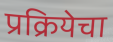
प्रक्रियेचा